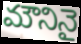
మౌనినై